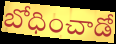
బోధించాడో